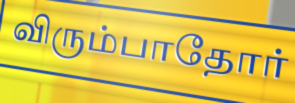
விரும்பாதோர்